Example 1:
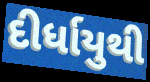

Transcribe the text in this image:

દીર્ધાયુથી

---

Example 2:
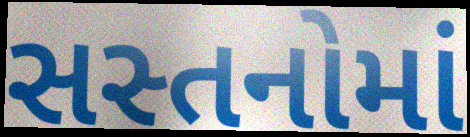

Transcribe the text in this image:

સસ્તનોમાં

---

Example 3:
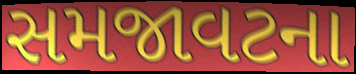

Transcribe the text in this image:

સમજાવટના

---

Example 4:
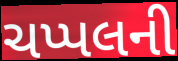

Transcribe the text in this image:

ચપ્પલની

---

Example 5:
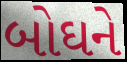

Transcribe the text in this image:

બોઘને